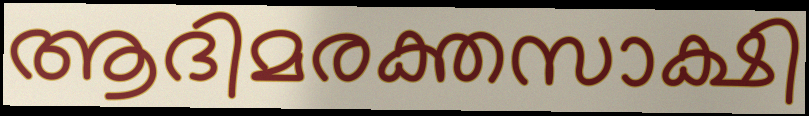
ആദിമരക്തസാക്ഷി